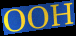
OOH